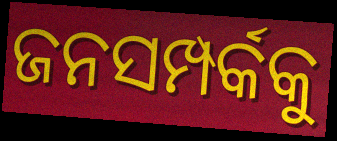
ଜନସମ୍ପର୍କକୁ